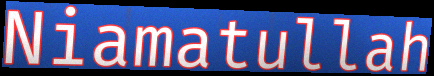
Niamatullah